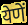
येणें